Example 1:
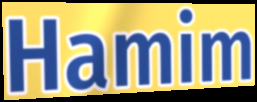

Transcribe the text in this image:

Hamim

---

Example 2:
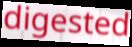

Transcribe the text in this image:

digested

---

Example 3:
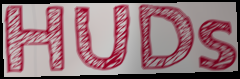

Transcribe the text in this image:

HUDs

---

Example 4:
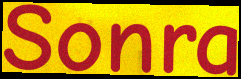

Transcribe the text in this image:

Sonra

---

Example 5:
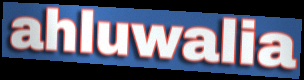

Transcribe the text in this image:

ahluwalia